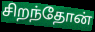
சிறந்தோன்